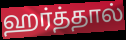
ஹர்த்தால்